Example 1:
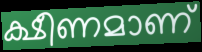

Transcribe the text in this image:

ക്ഷീണമാണ്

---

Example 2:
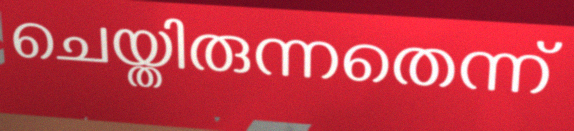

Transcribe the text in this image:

ചെയ്തിരുന്നതെന്ന്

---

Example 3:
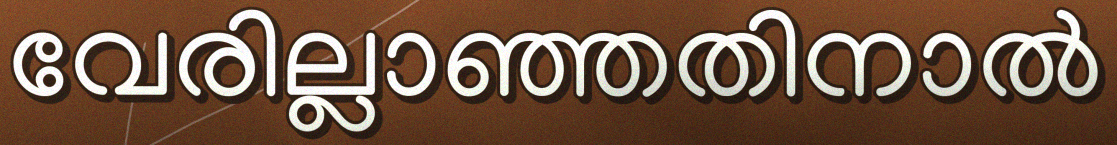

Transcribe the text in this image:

വേരില്ലാഞ്ഞതിനാൽ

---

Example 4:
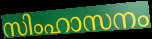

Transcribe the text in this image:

സിംഹാസനം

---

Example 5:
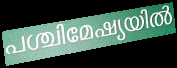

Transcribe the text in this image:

പശ്ചിമേഷ്യയിൽ